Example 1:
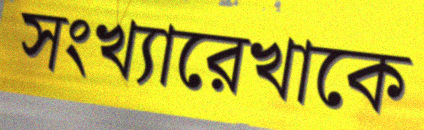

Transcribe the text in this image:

সংখ্যারেখাকে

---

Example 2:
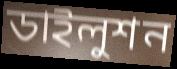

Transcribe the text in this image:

ডাইলুশন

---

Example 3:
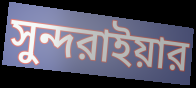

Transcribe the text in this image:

সুন্দরাইয়ার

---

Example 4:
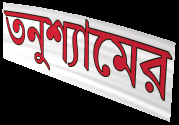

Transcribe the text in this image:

তনুশ্যামের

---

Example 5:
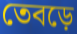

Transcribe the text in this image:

তেবড়ে